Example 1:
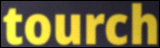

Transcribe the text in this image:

tourch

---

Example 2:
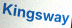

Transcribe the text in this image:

Kingsway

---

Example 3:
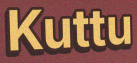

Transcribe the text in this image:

Kuttu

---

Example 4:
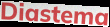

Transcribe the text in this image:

Diastema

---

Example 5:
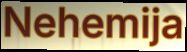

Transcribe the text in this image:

Nehemija